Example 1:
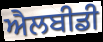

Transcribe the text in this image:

ਐਲਬੀਡੀ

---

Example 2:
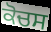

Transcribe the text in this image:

ਕੋਚਸ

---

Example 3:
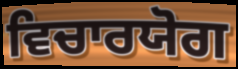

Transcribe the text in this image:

ਵਿਚਾਰਯੋਗ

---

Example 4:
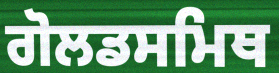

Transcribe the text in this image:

ਗੋਲਡਸਮਿਥ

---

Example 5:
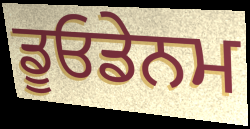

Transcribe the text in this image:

ਡੂਓਡੇਨਮ